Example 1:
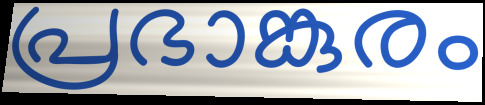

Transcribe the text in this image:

പ്രഭാങ്കുരം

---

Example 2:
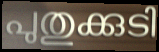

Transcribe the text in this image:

പുതുക്കുടി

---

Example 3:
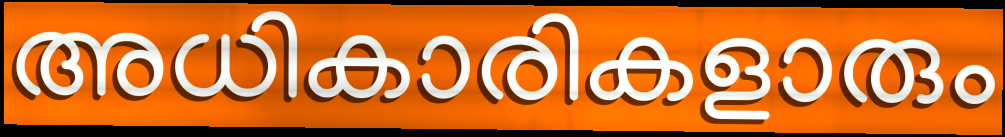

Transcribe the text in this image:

അധികാരികളാരും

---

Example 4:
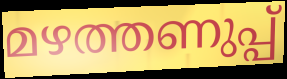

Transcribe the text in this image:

മഴത്തണുപ്പ്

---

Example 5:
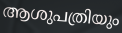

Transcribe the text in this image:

ആശുപത്രിയും